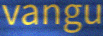
vangu